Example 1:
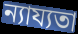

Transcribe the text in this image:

ন্যায্যতা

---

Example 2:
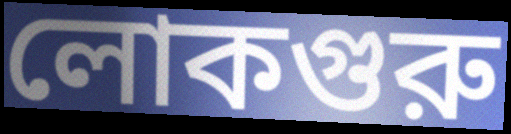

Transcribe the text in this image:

লোকগুরু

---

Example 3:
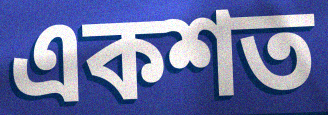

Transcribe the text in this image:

একশত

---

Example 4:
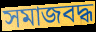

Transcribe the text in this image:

সমাজবদ্ধ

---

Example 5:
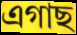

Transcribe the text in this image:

এগাছ